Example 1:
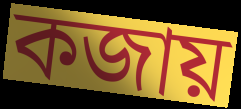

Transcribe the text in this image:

কজায়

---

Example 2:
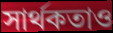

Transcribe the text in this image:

সার্থকতাও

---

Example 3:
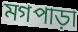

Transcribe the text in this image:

মগপাড়া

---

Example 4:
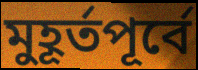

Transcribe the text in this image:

মুহূর্তপূর্বে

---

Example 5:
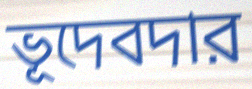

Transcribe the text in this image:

ভূদেবদার